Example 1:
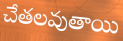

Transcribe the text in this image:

చేతలవుతాయి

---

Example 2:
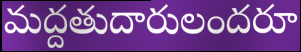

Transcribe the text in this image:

మద్దతుదారులందరూ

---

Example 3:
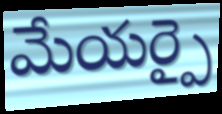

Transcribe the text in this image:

మేయర్పై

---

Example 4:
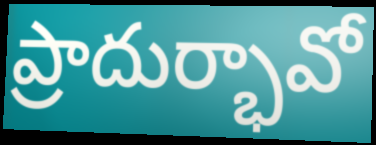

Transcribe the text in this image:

ప్రాదుర్భావో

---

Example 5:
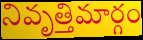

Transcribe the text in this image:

నివృత్తిమార్గం